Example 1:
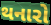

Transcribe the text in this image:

થનારો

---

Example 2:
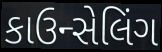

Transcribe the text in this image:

કાઉન્સેલિંગ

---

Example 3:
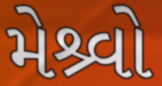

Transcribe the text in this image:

મેશ્ર્વો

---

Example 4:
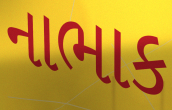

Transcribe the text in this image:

નાભાક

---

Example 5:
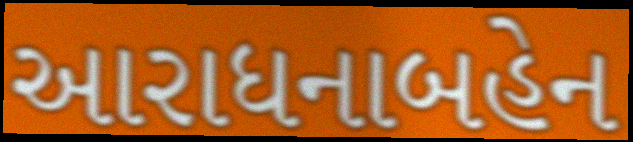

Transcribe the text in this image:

આરાધનાબહેન